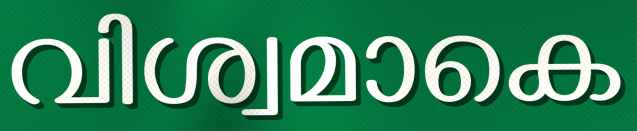
വിശ്വമാകെ